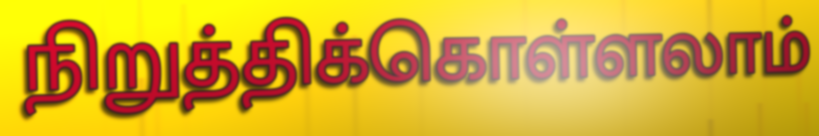
நிறுத்திக்கொள்ளலாம்